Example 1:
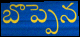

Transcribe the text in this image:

బొప్పెన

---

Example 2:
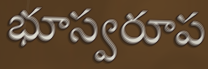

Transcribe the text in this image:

భూస్వరూప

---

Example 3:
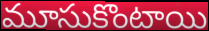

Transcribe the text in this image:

మూసుకొంటాయి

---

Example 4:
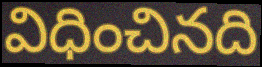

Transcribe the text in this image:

విధించినది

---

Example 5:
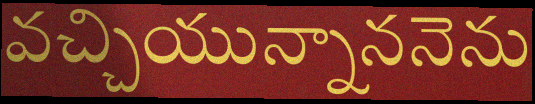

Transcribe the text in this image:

వచ్చియున్నాననెను